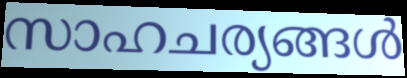
സാഹചര്യങ്ങൾ